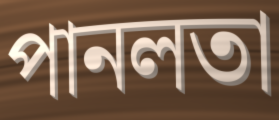
পানলতা